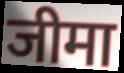
जीमा